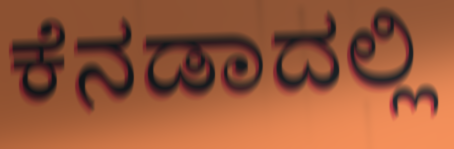
ಕೆನಡಾದಲ್ಲಿ